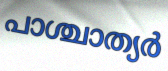
പാശ്ചാത്യർ